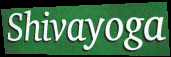
Shivayoga